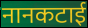
नानकटाई